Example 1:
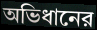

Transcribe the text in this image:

অভিধানের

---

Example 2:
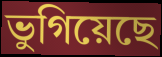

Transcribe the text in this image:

ভুগিয়েছে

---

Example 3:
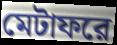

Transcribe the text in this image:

মেটাফরে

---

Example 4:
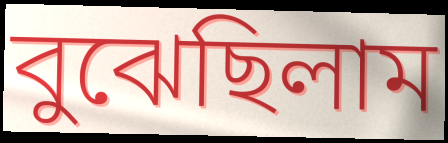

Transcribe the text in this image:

বুঝেছিলাম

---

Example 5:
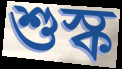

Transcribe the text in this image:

শুস্ক